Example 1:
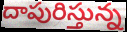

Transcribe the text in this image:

దాపురిస్తున్న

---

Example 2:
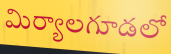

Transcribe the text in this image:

మిర్యాలగూడలో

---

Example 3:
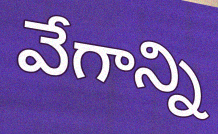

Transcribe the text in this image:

వేగాన్ని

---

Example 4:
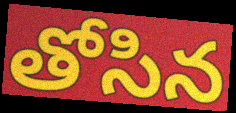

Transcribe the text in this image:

తోసిన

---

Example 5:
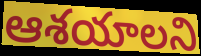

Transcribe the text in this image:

ఆశయాలని